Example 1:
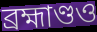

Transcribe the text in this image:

ব্রহ্মাণ্ডও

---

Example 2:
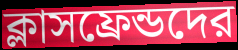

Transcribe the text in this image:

ক্লাসফ্রেন্ডদের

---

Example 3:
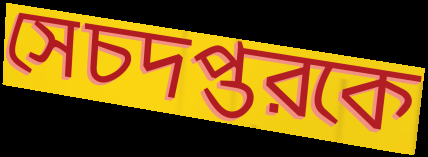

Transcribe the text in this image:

সেচদপ্তরকে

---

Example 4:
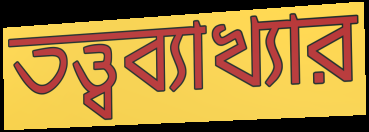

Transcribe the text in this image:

তত্ত্বব্যাখ্যার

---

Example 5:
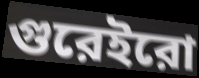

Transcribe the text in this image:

গুরেইরো